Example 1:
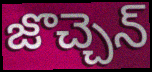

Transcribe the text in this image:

జొచ్చెన్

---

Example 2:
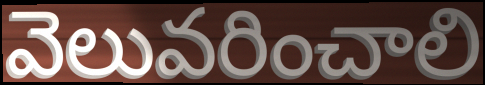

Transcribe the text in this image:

వెలువరించాలి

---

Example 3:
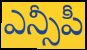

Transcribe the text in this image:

ఎన్సీపీ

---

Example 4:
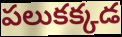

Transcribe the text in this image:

పలుకక్కడ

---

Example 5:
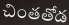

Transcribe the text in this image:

చింతతోడ